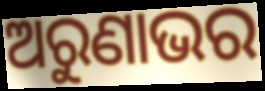
ଅରୁଣାଭର